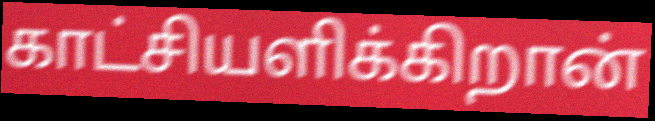
காட்சியளிக்கிறான்